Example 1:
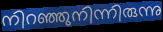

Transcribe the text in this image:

നിറഞ്ഞുനിന്നിരുന്നു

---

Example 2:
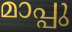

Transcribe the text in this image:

മാപ്പു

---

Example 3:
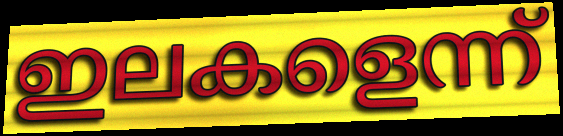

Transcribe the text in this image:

ഇലകളെന്ന്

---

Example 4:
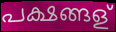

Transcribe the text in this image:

പക്ഷങ്ങള്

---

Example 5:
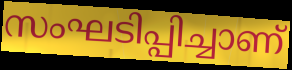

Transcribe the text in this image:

സംഘടിപ്പിച്ചാണ്